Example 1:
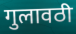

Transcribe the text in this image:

गुलावठी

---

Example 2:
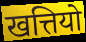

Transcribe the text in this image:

खत्तियो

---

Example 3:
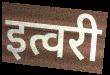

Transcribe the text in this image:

इत्वरी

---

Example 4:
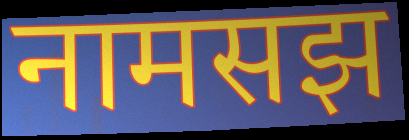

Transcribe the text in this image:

नामसझ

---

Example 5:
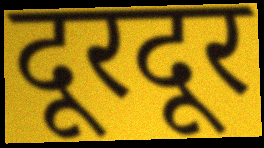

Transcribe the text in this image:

दूरदूर